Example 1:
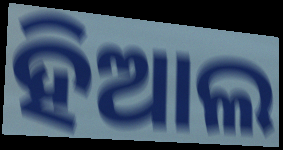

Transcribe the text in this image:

ହିଆଲ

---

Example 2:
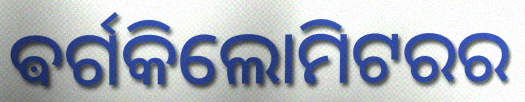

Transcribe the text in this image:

ଵର୍ଗକିଲୋମିଟରର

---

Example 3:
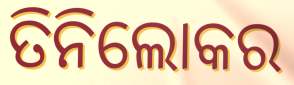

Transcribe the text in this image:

ତିନିଲୋକର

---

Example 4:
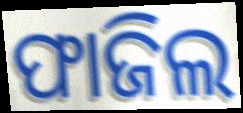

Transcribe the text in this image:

ଫାଜିଲ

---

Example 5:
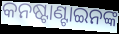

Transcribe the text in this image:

କନଷ୍ଟାଣ୍ଟାଇନଙ୍କ